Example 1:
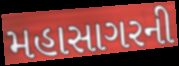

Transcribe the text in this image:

મહાસાગરની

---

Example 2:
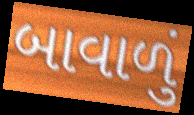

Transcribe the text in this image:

બાવાળું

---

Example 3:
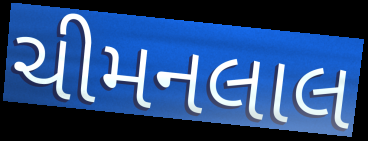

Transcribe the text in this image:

ચીમનલાલ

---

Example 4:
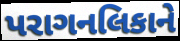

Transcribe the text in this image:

પરાગનલિકાને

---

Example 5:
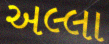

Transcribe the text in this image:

અલ્લા